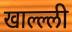
खाल्ल्ली